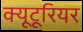
क्यूटूरियर